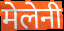
मेलेनी